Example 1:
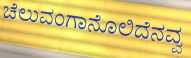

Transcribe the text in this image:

ಚೆಲುವಂಗಾನೊಲಿದೆನವ್ವ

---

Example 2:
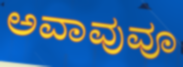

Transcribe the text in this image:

ಅವಾವುವೂ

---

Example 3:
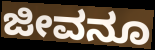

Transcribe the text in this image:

ಜೀವನೂ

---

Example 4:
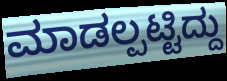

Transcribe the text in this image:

ಮಾಡಲ್ಪಟ್ಟಿದ್ದು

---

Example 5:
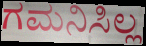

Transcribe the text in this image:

ಗಮನಿಸಿಲ್ಲ